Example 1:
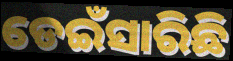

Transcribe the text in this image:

ଡେଇଁସାରିଛି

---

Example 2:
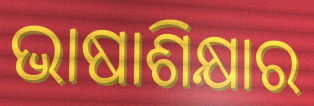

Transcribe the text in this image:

ଭାଷାଶିକ୍ଷାର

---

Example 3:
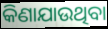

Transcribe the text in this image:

କିଣାଯାଉଥିବା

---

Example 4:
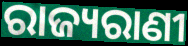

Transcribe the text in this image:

ରାଜ୍ୟରାଣୀ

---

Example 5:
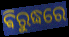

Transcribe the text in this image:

ଵିରୁଦ୍ଧରେ